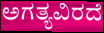
ಅಗತ್ಯವಿರದೆ